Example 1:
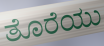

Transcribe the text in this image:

ತೊರೆಯು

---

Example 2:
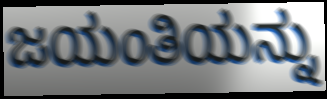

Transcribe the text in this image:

ಜಯಂತಿಯನ್ನು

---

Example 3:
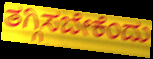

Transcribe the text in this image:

ತಗ್ಗಿಸಬೇಕೆಂದು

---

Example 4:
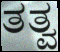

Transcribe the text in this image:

ತತ್ವ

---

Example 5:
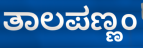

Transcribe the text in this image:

ತಾಲಪಣ್ಣಂ